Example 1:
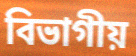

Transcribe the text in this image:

বিভাগীয়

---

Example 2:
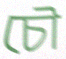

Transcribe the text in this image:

চৌ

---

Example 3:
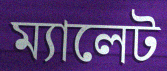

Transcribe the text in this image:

ম্যালেট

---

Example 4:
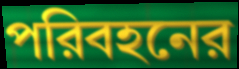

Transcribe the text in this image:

পরিবহনের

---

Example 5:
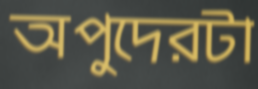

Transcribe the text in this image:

অপুদেরটা